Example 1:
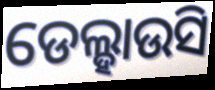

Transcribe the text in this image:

ଡେଲ୍ହାଉସି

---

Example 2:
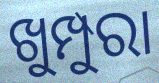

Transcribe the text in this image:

ଖୁମ୍ପୁରା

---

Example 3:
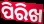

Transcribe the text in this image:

ପିରିଖ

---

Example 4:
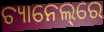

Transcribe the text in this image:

ଚ୍ୟାନେଲ୍‌ରେ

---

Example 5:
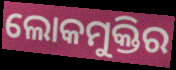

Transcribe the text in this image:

ଲୋକମୁକ୍ତିର